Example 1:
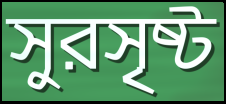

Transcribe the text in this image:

সুরসৃষ্ট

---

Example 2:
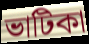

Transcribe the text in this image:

ভাটিকা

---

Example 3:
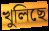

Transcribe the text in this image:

খুলিছে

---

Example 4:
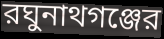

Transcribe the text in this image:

রঘুনাথগঞ্জের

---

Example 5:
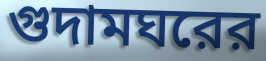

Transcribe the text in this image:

গুদামঘরের